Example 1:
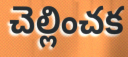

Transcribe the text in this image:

చెల్లించక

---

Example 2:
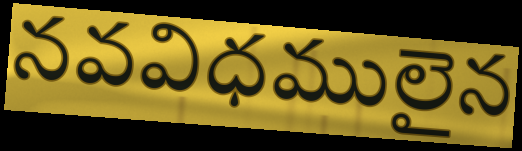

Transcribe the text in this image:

నవవిధములైన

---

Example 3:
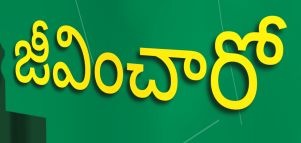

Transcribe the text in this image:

జీవించారో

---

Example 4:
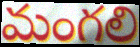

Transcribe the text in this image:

మంగలి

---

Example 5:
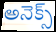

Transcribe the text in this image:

అనెక్స్